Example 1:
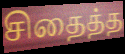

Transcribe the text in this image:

சிதைத்த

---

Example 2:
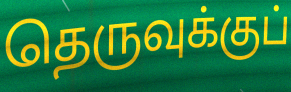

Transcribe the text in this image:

தெருவுக்குப்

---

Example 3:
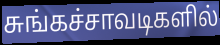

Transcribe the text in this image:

சுங்கச்சாவடிகளில்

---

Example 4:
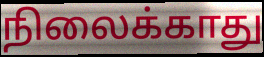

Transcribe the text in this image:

நிலைக்காது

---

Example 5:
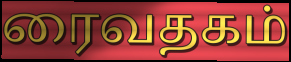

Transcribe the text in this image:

ரைவதகம்